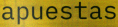
apuestas